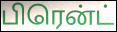
பிரென்ட்